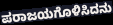
ಪರಾಜಯಗೊಳಿಸಿದನು